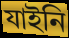
যাইনি